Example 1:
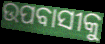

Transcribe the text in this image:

ଉପବାସୀକୁ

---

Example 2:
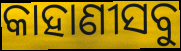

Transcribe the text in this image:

କାହାଣୀସବୁ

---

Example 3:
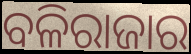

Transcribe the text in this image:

ବଳିରାଜାର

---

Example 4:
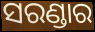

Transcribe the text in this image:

ସରଣ୍ଡାର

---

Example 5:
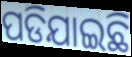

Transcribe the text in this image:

ପଡିଯାଇଛି